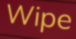
Wipe